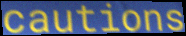
cautions